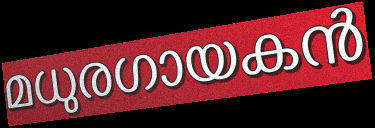
മധുരഗായകൻ